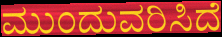
ಮುಂದುವರಿಸಿದೆ